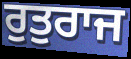
ਰੁਤੁਰਾਜ